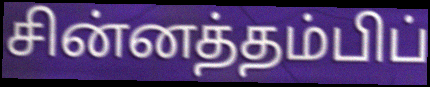
சின்னத்தம்பிப்